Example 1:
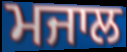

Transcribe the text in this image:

ਮਜਾਲ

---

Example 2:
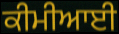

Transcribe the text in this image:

ਕੀਮੀਆਈ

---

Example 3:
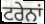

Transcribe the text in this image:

ਟਰੇਨਾਂ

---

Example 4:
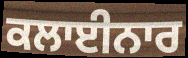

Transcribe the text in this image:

ਕਲਾਈਨਾਰ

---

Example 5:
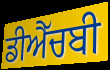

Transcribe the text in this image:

ਡੀਐੱਚਬੀ